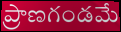
ప్రాణగండమే